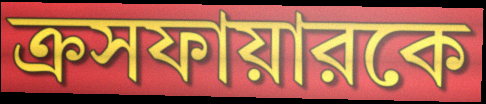
ক্রসফায়ারকে